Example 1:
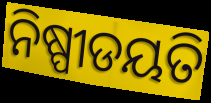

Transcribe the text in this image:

ନିଷ୍ପୀଡୟତି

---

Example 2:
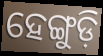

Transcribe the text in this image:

ହେଙ୍ଗୁଡ଼ି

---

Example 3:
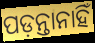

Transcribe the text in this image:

ପଡ଼ନ୍ତାନାହିଁ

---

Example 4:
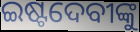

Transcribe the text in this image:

ଇଷ୍ଟଦେବୀଙ୍କୁ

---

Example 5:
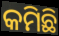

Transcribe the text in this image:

କମିଛି